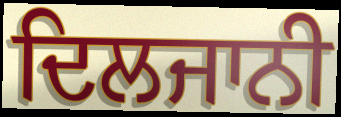
ਦਿਲਜਾਨੀ